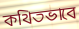
কথিতভাবে